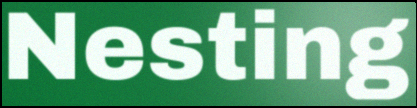
Nesting